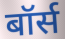
बॉर्स